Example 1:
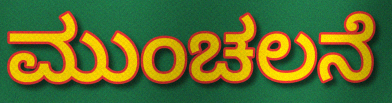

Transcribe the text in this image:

ಮುಂಚಲನೆ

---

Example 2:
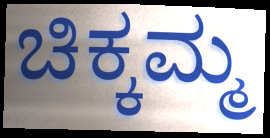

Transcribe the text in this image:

ಚಿಕ್ಕಮ್ಮ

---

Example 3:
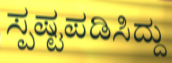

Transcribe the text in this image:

ಸ್ಪಷ್ಟಪಡಿಸಿದ್ದು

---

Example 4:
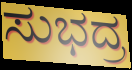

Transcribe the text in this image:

ಸುಭದ್ರ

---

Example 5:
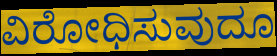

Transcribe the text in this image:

ವಿರೋಧಿಸುವುದೂ